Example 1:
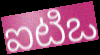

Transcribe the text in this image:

ఐటిఒ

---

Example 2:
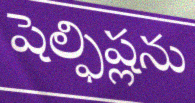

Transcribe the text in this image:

షెల్ఫిష్లను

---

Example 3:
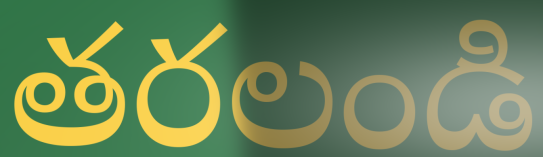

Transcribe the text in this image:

తరలండి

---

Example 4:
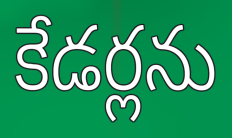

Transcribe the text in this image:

కేడర్లను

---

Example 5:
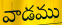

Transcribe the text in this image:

వాడము